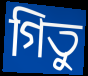
গিতু